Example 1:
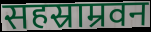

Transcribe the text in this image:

सहस्राम्रवन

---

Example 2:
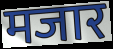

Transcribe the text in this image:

मजार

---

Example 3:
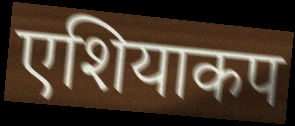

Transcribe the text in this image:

एशियाकप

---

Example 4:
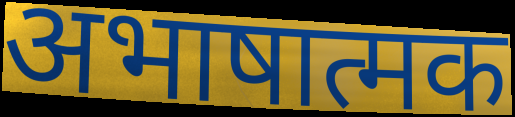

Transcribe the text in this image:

अभाषात्मक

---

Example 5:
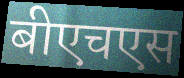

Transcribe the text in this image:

बीएचएस